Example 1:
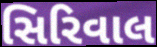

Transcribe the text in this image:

સિરિવાલ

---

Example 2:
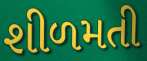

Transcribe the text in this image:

શીળમતી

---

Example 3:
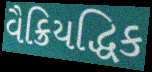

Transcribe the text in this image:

વૈક્રિયદ્ધિક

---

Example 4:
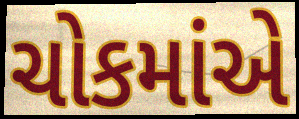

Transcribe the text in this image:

ચોકમાંએ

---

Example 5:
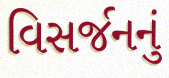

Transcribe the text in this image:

વિસર્જનનું